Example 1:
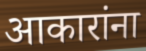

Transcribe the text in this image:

आकारांना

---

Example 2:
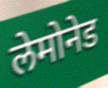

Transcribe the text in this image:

लेमोनेड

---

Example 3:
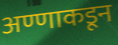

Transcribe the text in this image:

अण्णाकडून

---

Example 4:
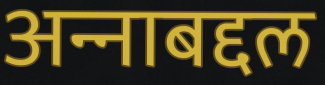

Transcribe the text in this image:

अन्‍नाबद्दल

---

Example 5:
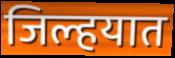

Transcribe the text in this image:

जिल्हयात